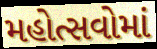
મહોત્સવોમાં